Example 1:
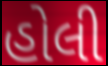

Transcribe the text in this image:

હોલી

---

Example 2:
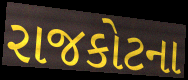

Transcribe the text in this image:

રાજકોટના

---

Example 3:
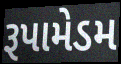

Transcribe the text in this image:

રૂપામેડમ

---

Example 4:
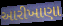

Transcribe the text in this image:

આરીખાણા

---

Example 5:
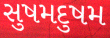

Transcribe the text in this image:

સુષમદુષમ